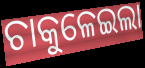
ଚାକୁଳେଇଲା